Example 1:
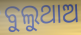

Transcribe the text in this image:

ବୁଲୁଥାଅ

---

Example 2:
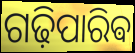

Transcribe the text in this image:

ଗଢ଼ିପାରିଵ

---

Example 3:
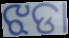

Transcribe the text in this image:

ଝଡା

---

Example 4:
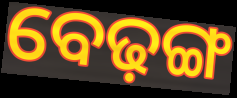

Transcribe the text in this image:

ବେଢ଼ଙ୍ଗ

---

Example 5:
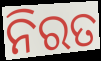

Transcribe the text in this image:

ନିରତ